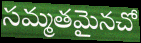
సమ్మతమైనచో